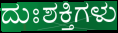
ದುಃಶಕ್ತಿಗಳು